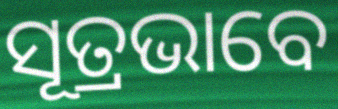
ସୂତ୍ରଭାବେ